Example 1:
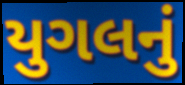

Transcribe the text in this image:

યુગલનું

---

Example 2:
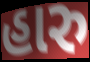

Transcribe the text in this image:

હારુ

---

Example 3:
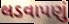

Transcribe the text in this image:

લડવાપણું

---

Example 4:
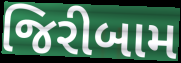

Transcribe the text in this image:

જિરીબામ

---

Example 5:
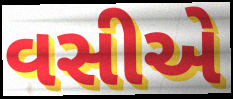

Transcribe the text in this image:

વસીએ